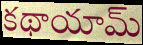
కథాయామ్